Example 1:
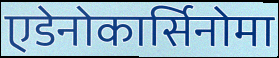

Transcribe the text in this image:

एडेनोकार्सिनोमा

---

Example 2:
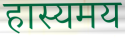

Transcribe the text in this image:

हास्यमय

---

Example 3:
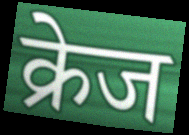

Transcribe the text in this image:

क्रेज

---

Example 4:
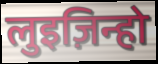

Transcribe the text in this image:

लुइज़िन्हो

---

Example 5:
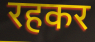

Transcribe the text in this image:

रहकर